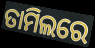
ତାମିଲରେ